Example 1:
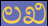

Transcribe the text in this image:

ಲಖಿ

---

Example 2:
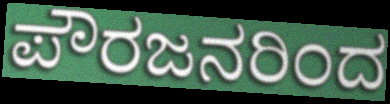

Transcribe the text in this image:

ಪೌರಜನರಿಂದ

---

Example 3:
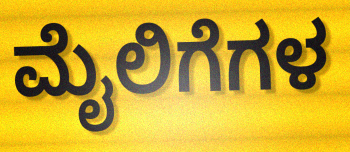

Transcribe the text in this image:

ಮೈಲಿಗೆಗಳ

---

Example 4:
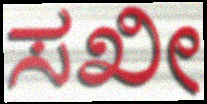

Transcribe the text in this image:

ಸಖೀ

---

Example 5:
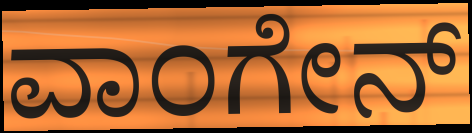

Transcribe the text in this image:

ವಾಂಗೇನ್